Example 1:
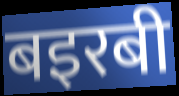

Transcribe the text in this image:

बइरबी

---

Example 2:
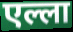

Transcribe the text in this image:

एल्ला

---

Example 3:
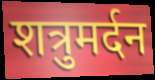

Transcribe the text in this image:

शत्रुमर्दन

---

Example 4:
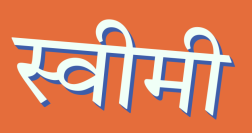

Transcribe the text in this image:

स्वीमी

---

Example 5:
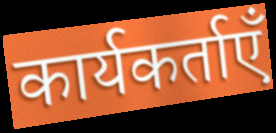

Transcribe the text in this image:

कार्यकर्ताएँ